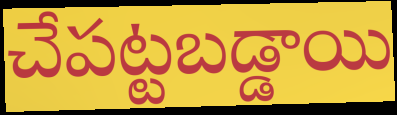
చేపట్టబడ్డాయి